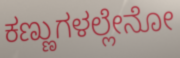
ಕಣ್ಣುಗಳಲ್ಲೇನೋ